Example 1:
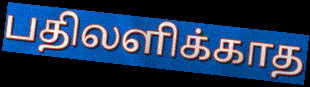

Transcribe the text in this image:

பதிலளிக்காத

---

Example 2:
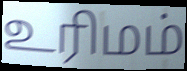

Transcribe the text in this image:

உரிமம்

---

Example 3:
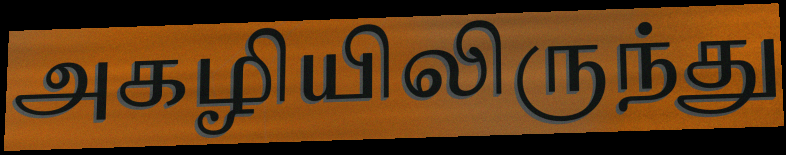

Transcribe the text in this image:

அகழியிலிருந்து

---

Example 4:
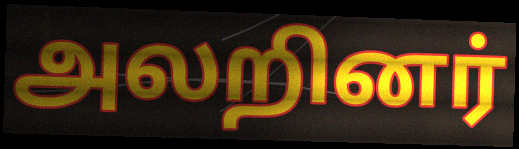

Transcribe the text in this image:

அலறினர்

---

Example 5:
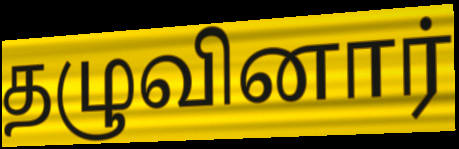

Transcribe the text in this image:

தழுவினார்